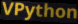
VPython